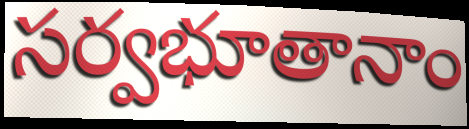
సర్వభూతానాం